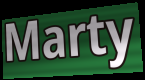
Marty